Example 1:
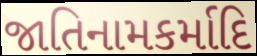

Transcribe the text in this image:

જાતિનામકર્માદિ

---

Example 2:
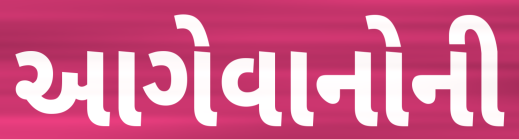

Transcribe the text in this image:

આગેવાનોની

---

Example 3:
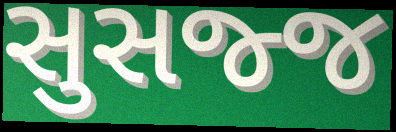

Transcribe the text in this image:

સુસજ્જ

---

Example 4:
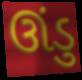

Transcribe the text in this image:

ઊંડુ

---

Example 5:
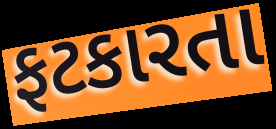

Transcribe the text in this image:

ફટકારતા